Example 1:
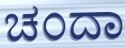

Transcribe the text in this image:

ಚಂದಾ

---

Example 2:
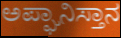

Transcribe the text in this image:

ಅಪ್ಘಾನಿಸ್ತಾನ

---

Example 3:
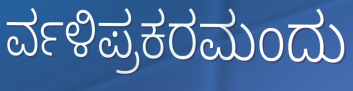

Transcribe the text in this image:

ರ್ವಳಿಪ್ರಕರಮಂದು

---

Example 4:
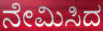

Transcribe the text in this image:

ನೇಮಿಸಿದ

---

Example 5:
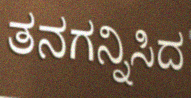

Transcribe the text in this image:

ತನಗನ್ನಿಸಿದ